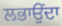
ਲਭਾਉਂਦਾ